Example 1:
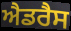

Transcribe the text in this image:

ਐਡਰੈਸ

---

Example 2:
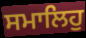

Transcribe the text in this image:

ਸਮਾਲਿਹੁ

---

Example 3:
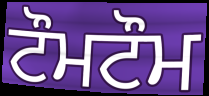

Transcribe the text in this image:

ਟੌਮਟੌਮ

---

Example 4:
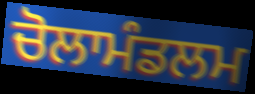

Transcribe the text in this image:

ਚੋਲਾਮੰਡਲਮ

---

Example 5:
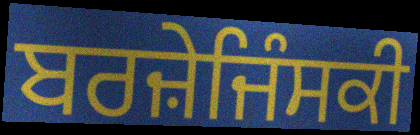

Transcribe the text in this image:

ਬਰਜ਼ੇਜਿੰਸਕੀ